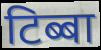
टिब्बा